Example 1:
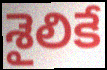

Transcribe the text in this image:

శైలికే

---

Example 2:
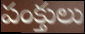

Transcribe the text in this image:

పంక్తులు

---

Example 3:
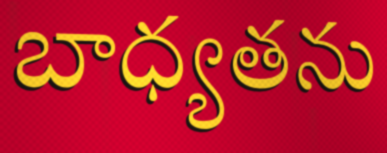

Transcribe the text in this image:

బాధ్యతను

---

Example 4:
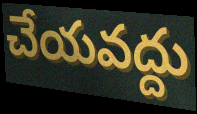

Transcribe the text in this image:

చేయవద్దు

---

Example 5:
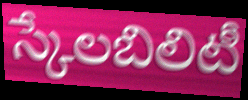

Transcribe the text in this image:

స్కేలబిలిటీ